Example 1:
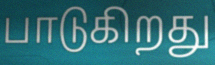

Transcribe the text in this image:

பாடுகிறது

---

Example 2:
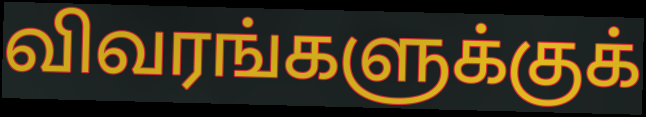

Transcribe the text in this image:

விவரங்களுக்குக்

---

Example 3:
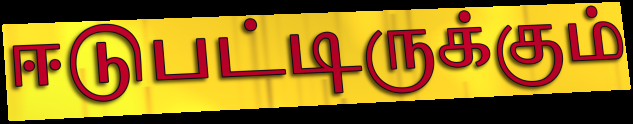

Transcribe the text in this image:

ஈடுபட்டிருக்கும்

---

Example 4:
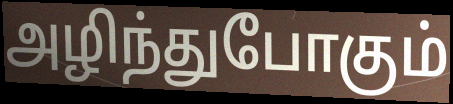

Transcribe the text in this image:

அழிந்துபோகும்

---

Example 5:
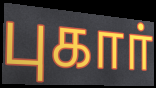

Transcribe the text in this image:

புகார்